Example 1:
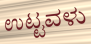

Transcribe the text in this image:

ಉಟ್ಟವಳು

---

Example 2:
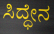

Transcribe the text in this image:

ಸಿದ್ಧೇನ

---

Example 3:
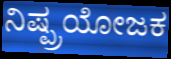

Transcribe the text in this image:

ನಿಷ್ಪ್ರಯೋಜಕ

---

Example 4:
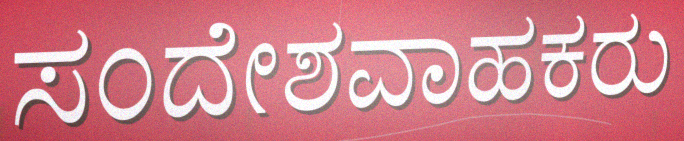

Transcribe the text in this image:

ಸಂದೇಶವಾಹಕರು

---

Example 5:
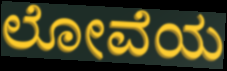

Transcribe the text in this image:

ಲೋವೆಯ